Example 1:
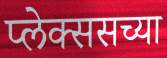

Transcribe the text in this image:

प्लेक्ससच्या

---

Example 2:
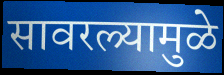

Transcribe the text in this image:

सावरल्यामुळे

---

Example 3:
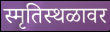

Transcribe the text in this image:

स्मृतिस्थळावर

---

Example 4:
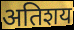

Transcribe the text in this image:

अतिशय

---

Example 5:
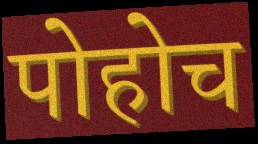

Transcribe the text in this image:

पोहोच